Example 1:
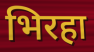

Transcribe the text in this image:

भिरहा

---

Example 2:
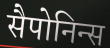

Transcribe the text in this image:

सैपोनिन्स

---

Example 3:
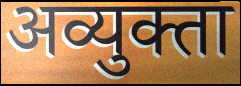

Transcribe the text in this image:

अव्युक्ता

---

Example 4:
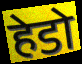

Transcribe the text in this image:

हेडो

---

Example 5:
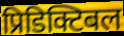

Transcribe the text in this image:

प्रिडिक्टिबल